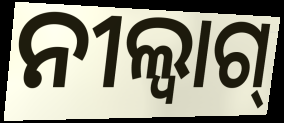
ନୀଲ୍ବାଗ୍